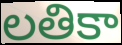
లతికా